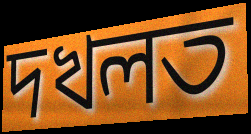
দখলত